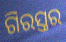
ଗିରସ୍ତର